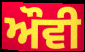
ਔਵੀ